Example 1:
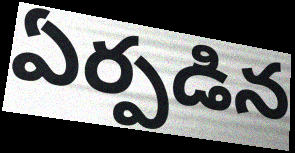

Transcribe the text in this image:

ఏర్పడిన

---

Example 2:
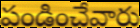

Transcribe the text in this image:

పండించేవారు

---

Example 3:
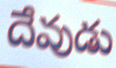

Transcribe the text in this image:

దేవుడు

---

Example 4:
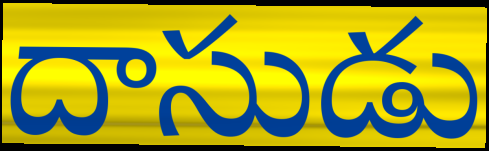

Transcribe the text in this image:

దాసుడు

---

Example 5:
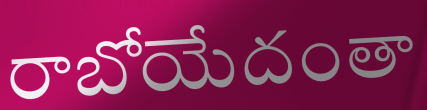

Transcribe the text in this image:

రాబోయేదంతా